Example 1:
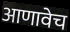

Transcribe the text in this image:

आणावेच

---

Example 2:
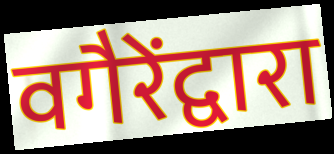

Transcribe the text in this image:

वगैरेंद्वारा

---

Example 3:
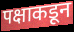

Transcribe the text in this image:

पक्षाकडून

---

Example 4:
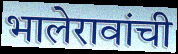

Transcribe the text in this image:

भालेरावांची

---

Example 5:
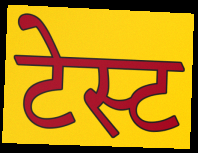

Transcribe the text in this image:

टेस्ट